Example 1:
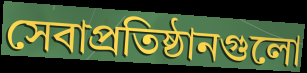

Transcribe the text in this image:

সেবাপ্রতিষ্ঠানগুলো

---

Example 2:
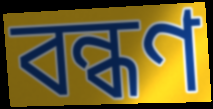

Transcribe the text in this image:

বন্ধণ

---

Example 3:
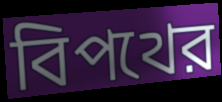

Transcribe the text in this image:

বিপথের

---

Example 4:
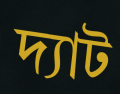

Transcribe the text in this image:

দ্যাট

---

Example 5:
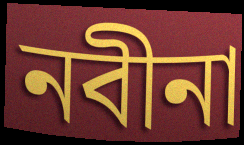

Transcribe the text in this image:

নবীনা